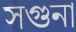
সগুনা